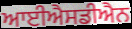
ਆਈਐਸਡੀਐਨ